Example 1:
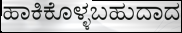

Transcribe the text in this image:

ಹಾಕಿಕೊಳ್ಳಬಹುದಾದ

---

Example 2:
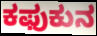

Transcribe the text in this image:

ಕಫುಕುನ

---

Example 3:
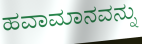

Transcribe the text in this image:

ಹವಾಮಾನವನ್ನು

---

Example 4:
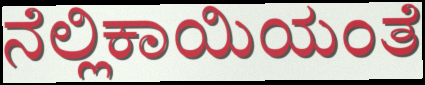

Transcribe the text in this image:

ನೆಲ್ಲಿಕಾಯಿಯಂತೆ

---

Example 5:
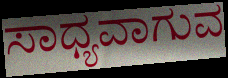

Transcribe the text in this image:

ಸಾಧ್ಯವಾಗುವ